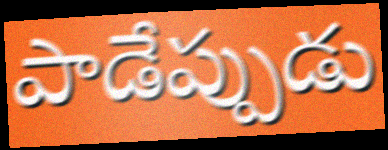
పాడేప్పుడు